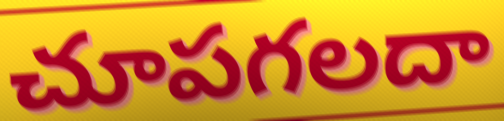
చూపగలదా